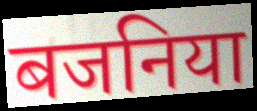
बजनिया